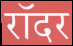
रॉदर